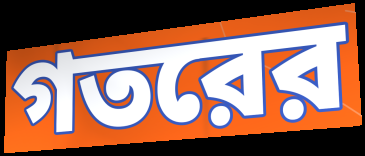
গতরের